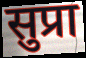
सुप्रा